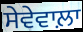
ਸੇਵੇਵਾਲ਼ਾ